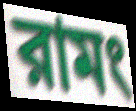
রামং